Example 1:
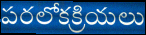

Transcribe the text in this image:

పరలోకక్రియలు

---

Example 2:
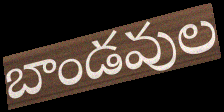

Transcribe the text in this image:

బాండవుల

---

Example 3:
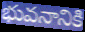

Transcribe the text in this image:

భువనానికి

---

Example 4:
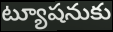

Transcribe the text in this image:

ట్యూషనుకు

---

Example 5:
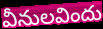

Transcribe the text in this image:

వీనులవిందు